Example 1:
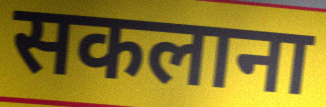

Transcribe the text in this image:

सकलाना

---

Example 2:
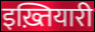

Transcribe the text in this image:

इख़्तियारी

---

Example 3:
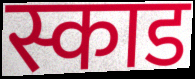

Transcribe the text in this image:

स्काड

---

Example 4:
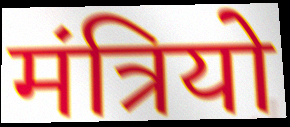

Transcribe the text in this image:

मंत्रियो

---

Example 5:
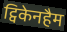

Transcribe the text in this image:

ट्विकेनहैम